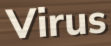
Virus